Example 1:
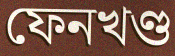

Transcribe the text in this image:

ফেনখণ্ড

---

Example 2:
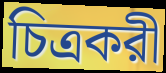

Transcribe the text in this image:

চিত্রকরী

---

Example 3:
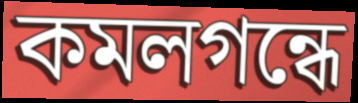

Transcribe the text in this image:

কমলগন্ধে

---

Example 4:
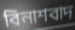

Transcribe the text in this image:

বিনাশবাদ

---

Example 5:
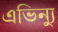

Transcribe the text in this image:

এভিন্যু